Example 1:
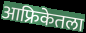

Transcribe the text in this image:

आफ्रिकेतला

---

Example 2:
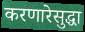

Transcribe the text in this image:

करणारेसुद्धा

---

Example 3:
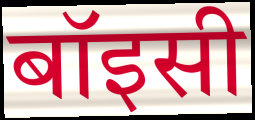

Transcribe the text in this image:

बॉइसी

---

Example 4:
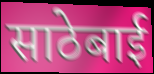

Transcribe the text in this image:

साठेबाई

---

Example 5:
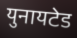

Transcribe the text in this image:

युनायटेड